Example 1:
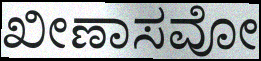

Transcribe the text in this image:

ಖೀಣಾಸವೋ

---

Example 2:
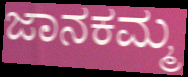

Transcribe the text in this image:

ಜಾನಕಮ್ಮ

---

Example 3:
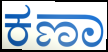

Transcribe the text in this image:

ಕಣಾ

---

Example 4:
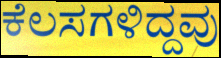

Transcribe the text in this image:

ಕೆಲಸಗಳಿದ್ದವು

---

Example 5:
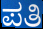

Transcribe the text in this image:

ಪತಿ